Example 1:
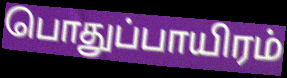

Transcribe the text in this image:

பொதுப்பாயிரம்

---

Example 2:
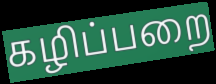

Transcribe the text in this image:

கழிப்பறை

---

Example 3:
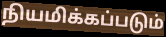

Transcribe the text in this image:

நியமிக்கப்படும்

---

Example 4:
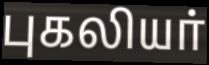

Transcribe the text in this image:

புகலியர்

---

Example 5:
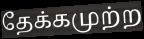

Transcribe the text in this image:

தேக்கமுற்ற